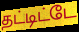
தட்டிட்டே